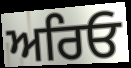
ਅਰਿਓ